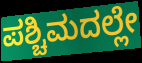
ಪಶ್ಚಿಮದಲ್ಲೇ